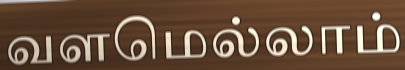
வளமெல்லாம்